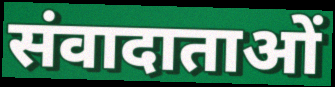
संवादाताओं